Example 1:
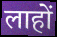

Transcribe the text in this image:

लाहों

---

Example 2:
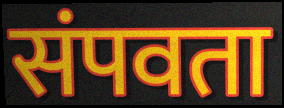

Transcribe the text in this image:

संपवता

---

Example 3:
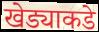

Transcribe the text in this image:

खेड्याकडे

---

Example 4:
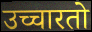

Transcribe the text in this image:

उच्चारतो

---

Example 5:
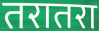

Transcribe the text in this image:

तरातरा